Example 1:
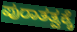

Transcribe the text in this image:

ಪುರಾತತ್ವಕ್ಕೆ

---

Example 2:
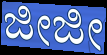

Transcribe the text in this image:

ಜೀಜೀ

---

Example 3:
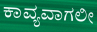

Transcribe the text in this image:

ಕಾವ್ಯವಾಗಲೀ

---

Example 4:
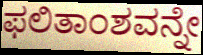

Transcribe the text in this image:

ಫಲಿತಾಂಶವನ್ನೇ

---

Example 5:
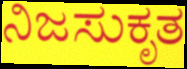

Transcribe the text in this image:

ನಿಜಸುಕೃತ